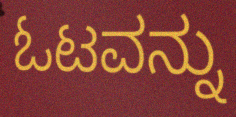
ಓಟವನ್ನು